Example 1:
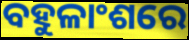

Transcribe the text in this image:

ବହୁଳାଂଶରେ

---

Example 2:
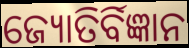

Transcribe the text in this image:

ଜ୍ୟୋତିର୍ବିଜ୍ଞାନ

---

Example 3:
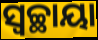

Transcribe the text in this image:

ସ୍ୱଚ୍ଛାୟା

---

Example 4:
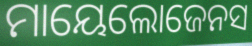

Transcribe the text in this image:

ମାୟେଲୋଜେନସ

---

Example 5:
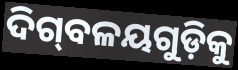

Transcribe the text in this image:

ଦିଗ୍‌ବଳୟଗୁଡ଼ିକୁ